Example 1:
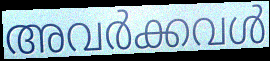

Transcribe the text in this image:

അവർക്കവൾ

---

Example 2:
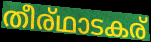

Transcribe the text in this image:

തീര്ഥാടകര്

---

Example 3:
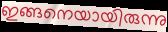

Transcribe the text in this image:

ഇങ്ങനെയായിരുന്നു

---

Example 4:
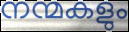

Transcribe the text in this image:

നന്മകളും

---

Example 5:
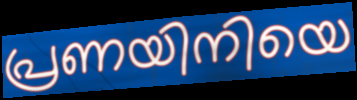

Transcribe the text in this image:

പ്രണയിനിയെ